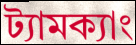
ট্যামক্যাং